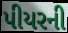
પીયરની